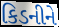
કિડનીને